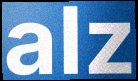
alz